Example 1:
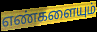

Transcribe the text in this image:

எண்களையும்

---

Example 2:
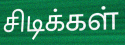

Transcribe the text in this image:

சிடிக்கள்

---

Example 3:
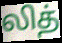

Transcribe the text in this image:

லித்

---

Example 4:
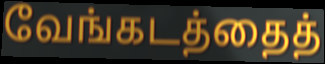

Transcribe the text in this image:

வேங்கடத்தைத்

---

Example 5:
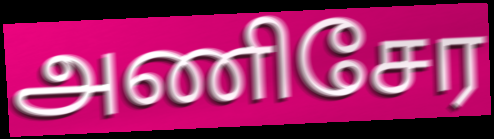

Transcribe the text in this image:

அணிசேர